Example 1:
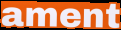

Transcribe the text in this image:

ament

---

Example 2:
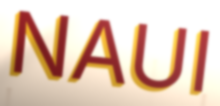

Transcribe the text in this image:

NAUI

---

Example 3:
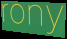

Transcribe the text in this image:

rony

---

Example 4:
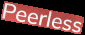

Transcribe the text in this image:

Peerless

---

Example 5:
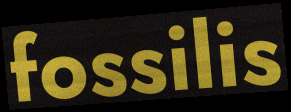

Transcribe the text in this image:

fossilis